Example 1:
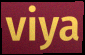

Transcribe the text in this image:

viya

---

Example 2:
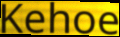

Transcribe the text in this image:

Kehoe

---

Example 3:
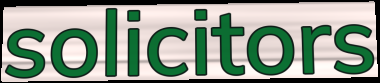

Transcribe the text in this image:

solicitors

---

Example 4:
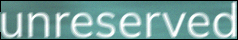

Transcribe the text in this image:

unreserved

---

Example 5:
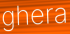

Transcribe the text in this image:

ghera